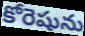
కోరెషును